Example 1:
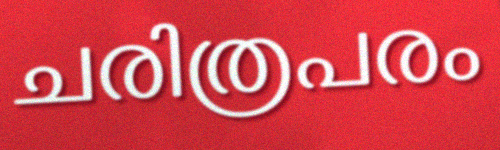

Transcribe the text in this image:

ചരിത്രപരം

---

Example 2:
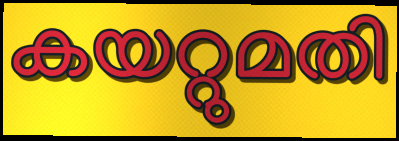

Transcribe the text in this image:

കയറ്റുമതി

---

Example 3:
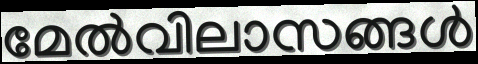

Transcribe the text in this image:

മേൽവിലാസങ്ങൾ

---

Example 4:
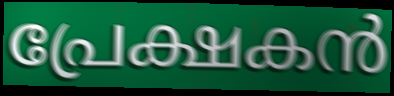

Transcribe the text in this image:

പ്രേക്ഷകൻ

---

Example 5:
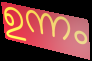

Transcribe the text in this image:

ഉന്നം